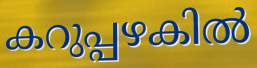
കറുപ്പഴകിൽ